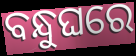
ବନ୍ଧୁଘରେ